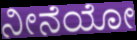
ನೀನೆಯೋ